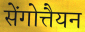
सेंगोत्तैयन